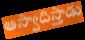
ఆస్వాదిస్తాడు